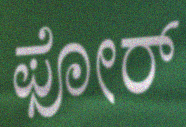
ಫೋರ್